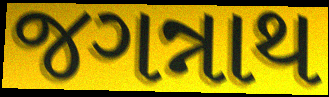
જગન્નાથ